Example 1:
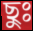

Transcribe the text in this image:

ছুঃ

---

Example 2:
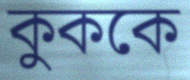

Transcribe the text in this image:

কুককে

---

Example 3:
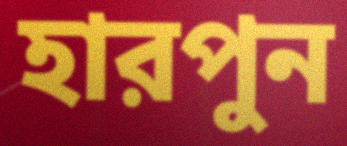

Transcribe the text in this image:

হারপুন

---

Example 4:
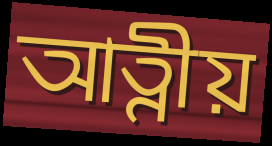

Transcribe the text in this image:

আত্নীয়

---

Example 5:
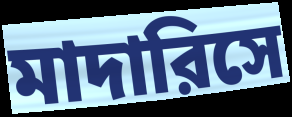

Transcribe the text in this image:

মাদারিসে